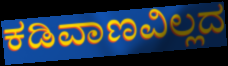
ಕಡಿವಾಣವಿಲ್ಲದ